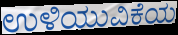
ಉಳಿಯುವಿಕೆಯ